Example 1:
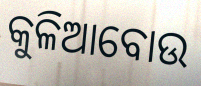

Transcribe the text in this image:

କୁଳିଆବୋଉ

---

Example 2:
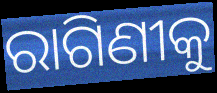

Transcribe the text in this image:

ରାଗିଣୀକୁ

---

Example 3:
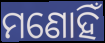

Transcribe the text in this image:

ମଣୋହିଁ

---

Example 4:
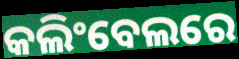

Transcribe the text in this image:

କଲିଂବେଲରେ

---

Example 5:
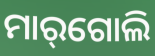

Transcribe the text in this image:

ମାର୍‌ଗୋଲି